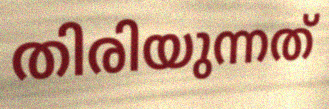
തിരിയുന്നത്